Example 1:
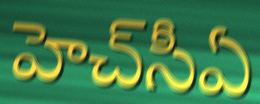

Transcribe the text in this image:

హెచ్‌సీఏ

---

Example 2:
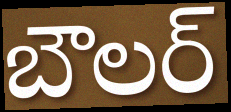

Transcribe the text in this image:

బౌలర్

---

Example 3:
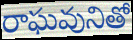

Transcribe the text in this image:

రాఘవునితో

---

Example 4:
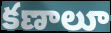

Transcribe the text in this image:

కణాలూ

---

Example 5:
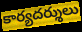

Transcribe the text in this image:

కార్యదర్శులు